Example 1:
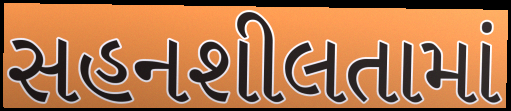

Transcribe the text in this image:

સહનશીલતામાં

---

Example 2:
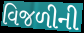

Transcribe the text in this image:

વિજળીની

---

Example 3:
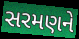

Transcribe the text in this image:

સરમણને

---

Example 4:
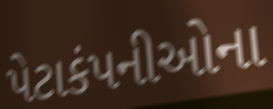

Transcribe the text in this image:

પેટાકંપનીઓના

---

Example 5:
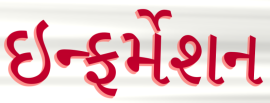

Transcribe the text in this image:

ઇન્ફર્મેશન